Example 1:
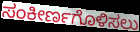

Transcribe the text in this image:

ಸಂಕೀರ್ಣಗೊಳಿಸಲು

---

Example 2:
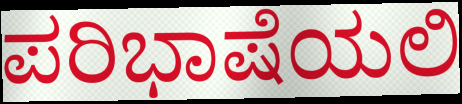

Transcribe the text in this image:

ಪರಿಭಾಷೆಯಲಿ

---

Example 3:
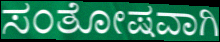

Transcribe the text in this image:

ಸಂತೋಷವಾಗಿ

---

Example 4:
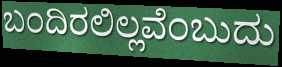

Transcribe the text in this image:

ಬಂದಿರಲಿಲ್ಲವೆಂಬುದು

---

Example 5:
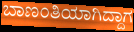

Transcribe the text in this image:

ಬಾಣಂತಿಯಾಗಿದ್ದಾಗ